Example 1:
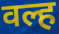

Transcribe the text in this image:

वल्ह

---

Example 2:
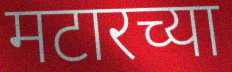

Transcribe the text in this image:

मटारच्या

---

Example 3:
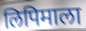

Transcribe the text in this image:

लिपिमाला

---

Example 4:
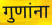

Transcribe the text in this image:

गुणांना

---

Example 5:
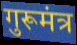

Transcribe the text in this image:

गुरूमंत्र